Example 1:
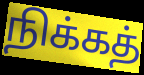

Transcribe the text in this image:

நிக்கத்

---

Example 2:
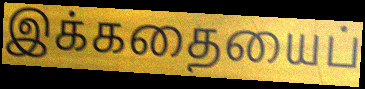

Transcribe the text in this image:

இக்கதையைப்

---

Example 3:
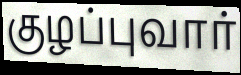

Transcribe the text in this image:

குழப்புவார்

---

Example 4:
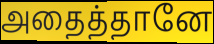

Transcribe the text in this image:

அதைத்தானே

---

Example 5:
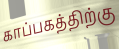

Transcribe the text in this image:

காப்பகத்திற்கு